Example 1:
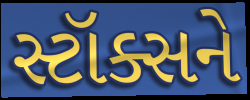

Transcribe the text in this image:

સ્ટૉક્સને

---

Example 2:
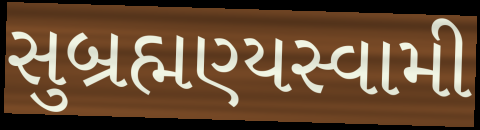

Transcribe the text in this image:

સુબ્રહ્મણ્યસ્વામી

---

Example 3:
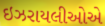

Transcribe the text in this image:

ઇઝરાયલીઓએ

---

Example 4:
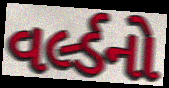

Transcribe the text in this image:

વર્લ્ડનો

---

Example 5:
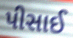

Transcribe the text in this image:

પીસાઈ